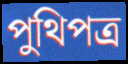
পুথিপত্র